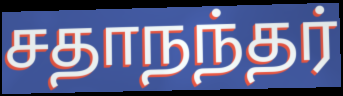
சதாநந்தர்